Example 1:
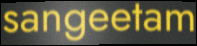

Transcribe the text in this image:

sangeetam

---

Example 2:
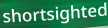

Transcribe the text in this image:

shortsighted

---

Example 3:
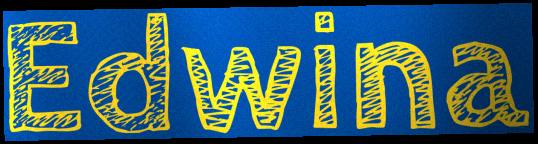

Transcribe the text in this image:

Edwina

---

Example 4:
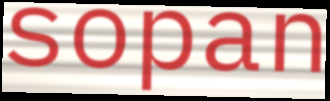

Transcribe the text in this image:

sopan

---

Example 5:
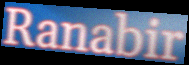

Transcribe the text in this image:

Ranabir